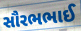
સૌરભભાઈ